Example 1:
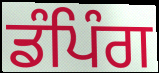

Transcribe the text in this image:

ਡੰਪਿੰਗ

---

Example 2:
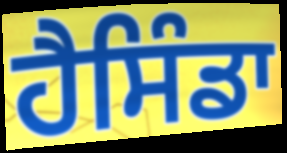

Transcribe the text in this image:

ਹੈਸਿੰਡਾ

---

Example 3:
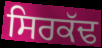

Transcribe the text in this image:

ਸਿਰਕੱਢ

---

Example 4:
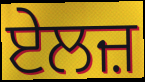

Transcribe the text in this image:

ਏਲਜ਼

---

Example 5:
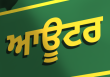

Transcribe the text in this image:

ਆਊਟਰ